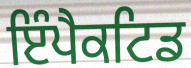
ਇੰਪੈਕਟਿਡ